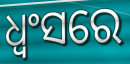
ଧ୍ୱଂସରେ